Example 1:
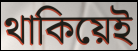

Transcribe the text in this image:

থাকিয়েই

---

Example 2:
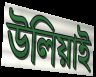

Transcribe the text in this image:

উলিয়াই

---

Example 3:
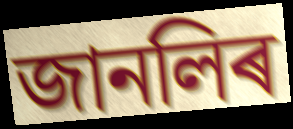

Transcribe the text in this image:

জানলিৰ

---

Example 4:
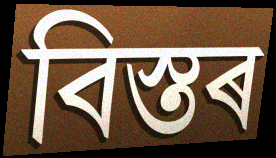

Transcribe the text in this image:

বিস্তৰ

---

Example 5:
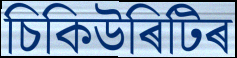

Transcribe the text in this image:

চিকিউৰিটিৰ